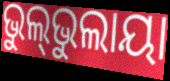
ଭୁଲ୍‌ଭୁଲାୟା